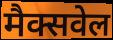
मैक्सवेल